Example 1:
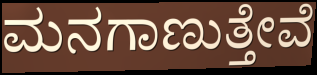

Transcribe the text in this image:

ಮನಗಾಣುತ್ತೇವೆ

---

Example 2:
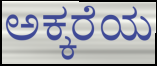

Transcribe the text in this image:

ಅಕ್ಕರೆಯ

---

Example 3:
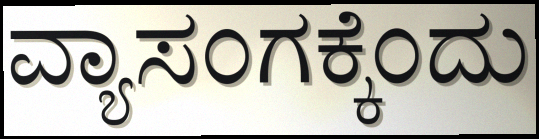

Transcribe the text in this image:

ವ್ಯಾಸಂಗಕ್ಕೆಂದು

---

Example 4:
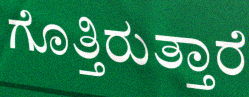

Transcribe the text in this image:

ಗೊತ್ತಿರುತ್ತಾರೆ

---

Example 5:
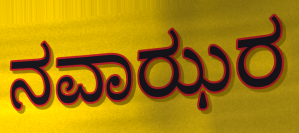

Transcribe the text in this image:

ನವಾಝರ